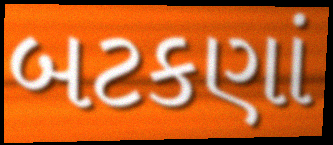
બટકણાં